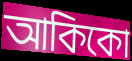
আকিকো